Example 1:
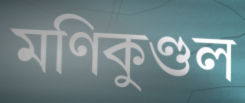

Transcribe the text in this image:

মণিকুণ্ডল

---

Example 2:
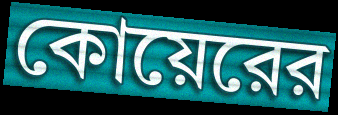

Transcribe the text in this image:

কোয়েরের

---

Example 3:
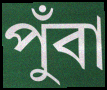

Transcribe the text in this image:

পুঁবা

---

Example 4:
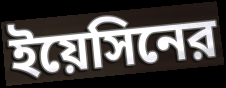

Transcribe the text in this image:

ইয়েসিনের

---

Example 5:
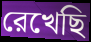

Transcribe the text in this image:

রেখেছি